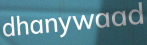
dhanywaad